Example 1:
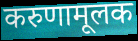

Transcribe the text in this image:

करुणामूलक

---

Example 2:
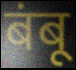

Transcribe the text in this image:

बंबू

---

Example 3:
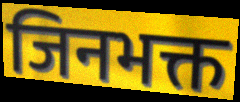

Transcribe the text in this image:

जिनभक्त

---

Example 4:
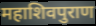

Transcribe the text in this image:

महाशिवपुराण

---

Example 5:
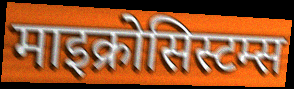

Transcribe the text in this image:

माइक्रोसिस्टम्स